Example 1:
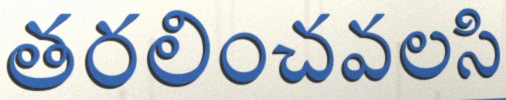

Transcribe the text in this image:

తరలించవలసి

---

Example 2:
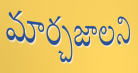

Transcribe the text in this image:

మార్చజాలని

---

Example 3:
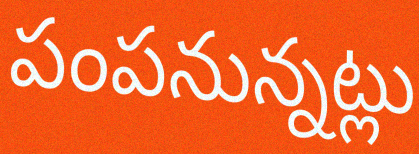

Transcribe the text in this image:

పంపనున్నట్లు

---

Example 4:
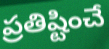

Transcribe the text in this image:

ప్రతిష్టించే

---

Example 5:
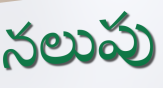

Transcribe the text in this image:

నలుపు